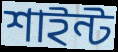
শাইন্ট